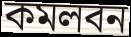
কমলবন